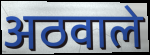
अठवाले